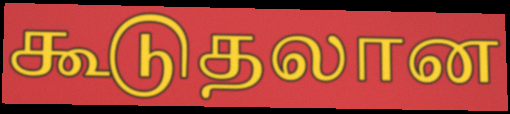
கூடுதலான